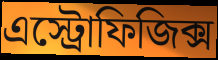
এস্ট্রোফিজিক্স